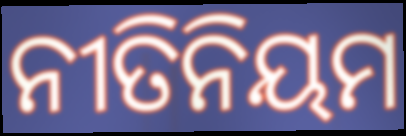
ନୀତିନିୟମ